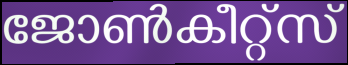
ജോൺകീറ്റ്സ്